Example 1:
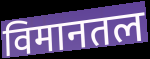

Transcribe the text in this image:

विमानतल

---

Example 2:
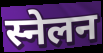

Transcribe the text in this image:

स्नेलन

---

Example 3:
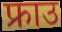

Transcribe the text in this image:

फ्राउ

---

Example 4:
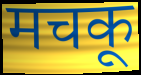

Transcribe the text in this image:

मचकू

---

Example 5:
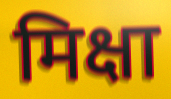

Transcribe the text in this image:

मिक्षा